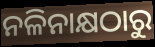
ନଳିନାକ୍ଷଠାରୁ